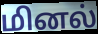
மினல்